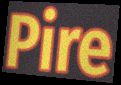
Pire